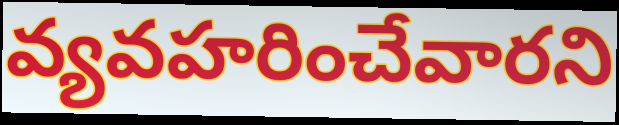
వ్యవహరించేవారని